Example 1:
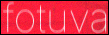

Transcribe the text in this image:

fotuva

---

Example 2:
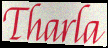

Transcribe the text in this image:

Tharla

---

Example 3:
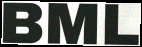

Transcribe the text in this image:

BML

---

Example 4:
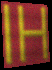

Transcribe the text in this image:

IH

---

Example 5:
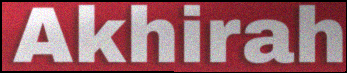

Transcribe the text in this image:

Akhirah